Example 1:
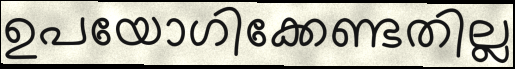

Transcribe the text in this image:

ഉപയോഗിക്കേണ്ടതില്ല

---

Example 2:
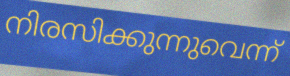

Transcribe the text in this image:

നിരസിക്കുന്നുവെന്ന്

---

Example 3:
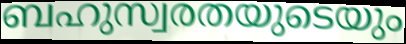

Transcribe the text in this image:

ബഹുസ്വരതയുടെയും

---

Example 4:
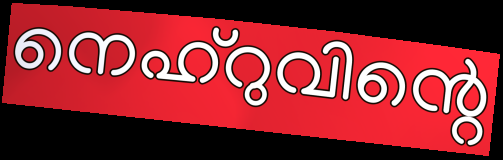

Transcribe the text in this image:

നെഹ്റുവിന്റെ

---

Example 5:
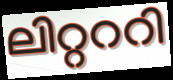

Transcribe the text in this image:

ലിറ്റററി